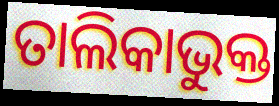
ତାଲିକାଭୁକ୍ତ